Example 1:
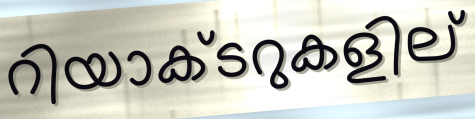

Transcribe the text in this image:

റിയാക്ടറുകളില്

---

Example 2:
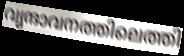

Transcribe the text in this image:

വൃന്ദാവനത്തിലെത്തി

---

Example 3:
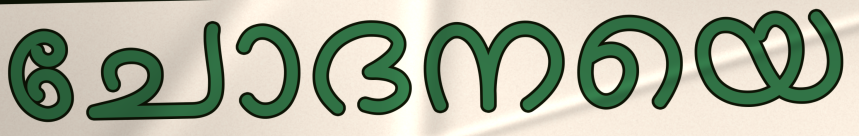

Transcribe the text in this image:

ചോദനയെ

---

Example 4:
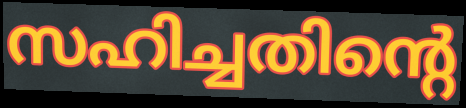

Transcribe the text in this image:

സഹിച്ചതിന്റെ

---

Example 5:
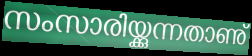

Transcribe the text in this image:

സംസാരിയ്ക്കുന്നതാണു്